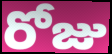
రోజు